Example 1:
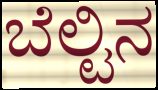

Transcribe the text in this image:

ಬೆಲ್ಟಿನ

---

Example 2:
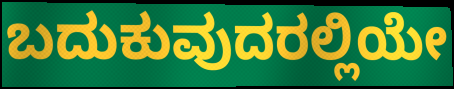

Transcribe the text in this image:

ಬದುಕುವುದರಲ್ಲಿಯೇ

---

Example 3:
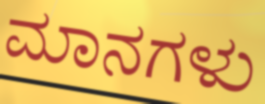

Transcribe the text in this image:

ಮಾನಗಳು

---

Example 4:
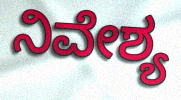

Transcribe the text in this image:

ನಿವೇಶ್ಯ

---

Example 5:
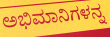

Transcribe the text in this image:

ಅಭಿಮಾನಿಗಳನ್ನ